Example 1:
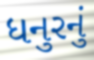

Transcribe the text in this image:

ધનુરનું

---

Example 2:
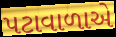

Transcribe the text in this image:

પટાવાળાએ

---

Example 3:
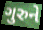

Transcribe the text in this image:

ગુરુને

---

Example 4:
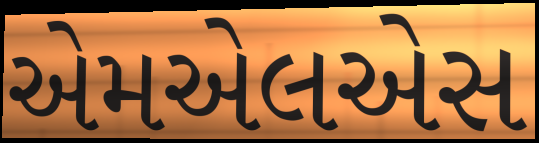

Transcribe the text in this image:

એમએલએસ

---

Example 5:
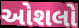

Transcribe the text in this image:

ઓશલો